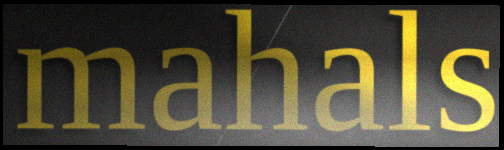
mahals